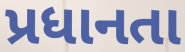
પ્રધાનતા